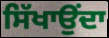
ਸਿੱਖਾਉਂਦਾ